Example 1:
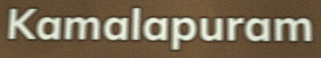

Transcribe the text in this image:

Kamalapuram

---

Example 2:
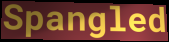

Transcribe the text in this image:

Spangled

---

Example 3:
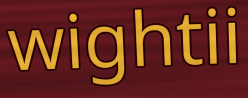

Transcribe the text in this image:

wightii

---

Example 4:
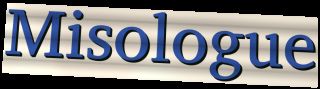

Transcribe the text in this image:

Misologue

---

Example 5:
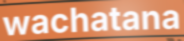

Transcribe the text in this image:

wachatana